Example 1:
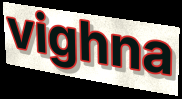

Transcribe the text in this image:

vighna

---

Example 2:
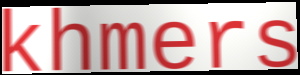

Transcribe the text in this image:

khmers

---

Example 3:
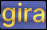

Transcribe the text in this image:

gira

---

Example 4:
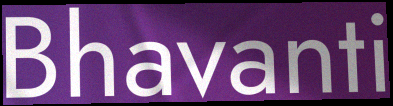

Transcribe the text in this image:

Bhavanti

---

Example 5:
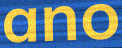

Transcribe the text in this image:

ano